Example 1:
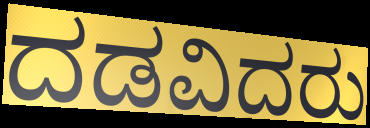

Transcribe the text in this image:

ದಡವಿದರು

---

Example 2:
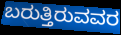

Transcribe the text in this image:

ಬರುತ್ತಿರುವವರ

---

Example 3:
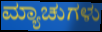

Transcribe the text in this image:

ಮ್ಯಾಚುಗಳು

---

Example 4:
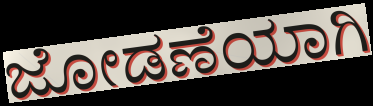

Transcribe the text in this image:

ಜೋಡಣೆಯಾಗಿ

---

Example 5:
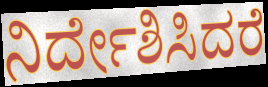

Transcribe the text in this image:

ನಿರ್ದೇಶಿಸಿದರೆ